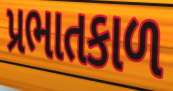
પ્રભાતકાળ